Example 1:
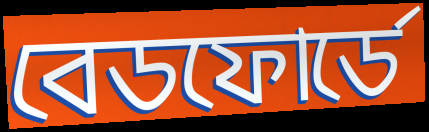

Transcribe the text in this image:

বেডফোর্ডে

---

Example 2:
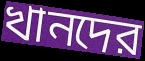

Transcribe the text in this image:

খানদের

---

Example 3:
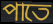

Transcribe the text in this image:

পাতে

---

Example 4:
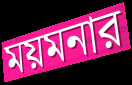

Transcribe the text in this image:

ময়মনার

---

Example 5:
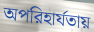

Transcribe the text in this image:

অপরিহার্যতায়